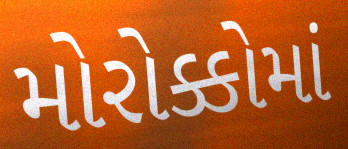
મોરોક્કોમાં